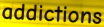
addictions